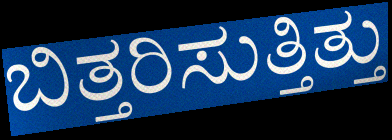
ಬಿತ್ತರಿಸುತ್ತಿತ್ತು